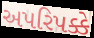
અપરિપક્કે